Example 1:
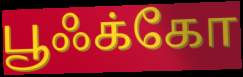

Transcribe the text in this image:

பூஃக்கோ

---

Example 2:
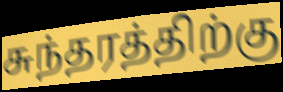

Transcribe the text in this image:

சுந்தரத்திற்கு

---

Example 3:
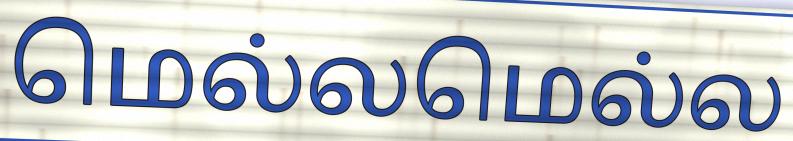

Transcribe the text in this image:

மெல்லமெல்ல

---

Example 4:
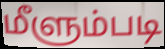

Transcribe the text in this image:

மீளும்படி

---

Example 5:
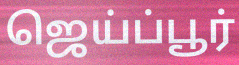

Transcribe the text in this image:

ஜெய்ப்பூர்